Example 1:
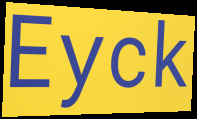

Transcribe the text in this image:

Eyck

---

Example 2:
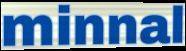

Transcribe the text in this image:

minnal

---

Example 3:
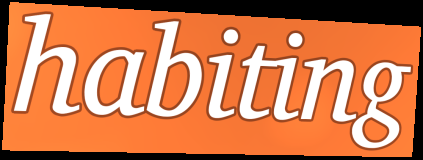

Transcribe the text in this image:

habiting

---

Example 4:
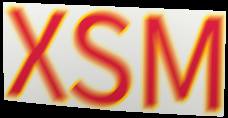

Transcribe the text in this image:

XSM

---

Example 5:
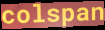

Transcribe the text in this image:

colspan